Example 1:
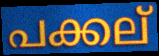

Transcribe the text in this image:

പക്കല്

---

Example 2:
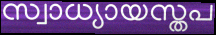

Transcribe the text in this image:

സ്വാധ്യായസ്തപ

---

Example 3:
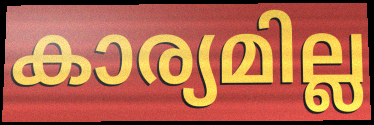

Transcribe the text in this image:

കാര്യമില്ല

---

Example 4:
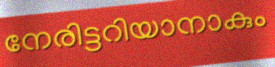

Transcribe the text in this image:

നേരിട്ടറിയാനാകും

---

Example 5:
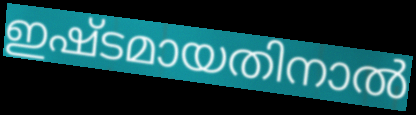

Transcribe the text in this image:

ഇഷ്ടമായതിനാൽ